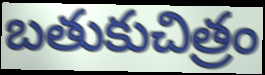
బతుకుచిత్రం